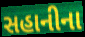
સહાનીના